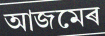
আজমেৰ